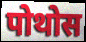
पोथोस